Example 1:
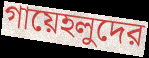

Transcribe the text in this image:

গায়েহলুদের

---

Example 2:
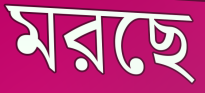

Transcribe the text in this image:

মরছে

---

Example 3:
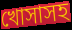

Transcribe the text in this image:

খোসাসহ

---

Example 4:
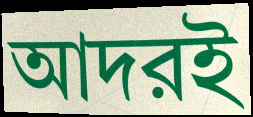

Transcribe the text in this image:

আদরই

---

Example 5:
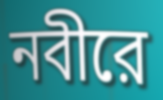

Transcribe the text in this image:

নবীরে